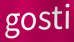
gosti